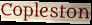
Copleston